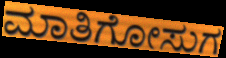
ಮಾತಿಗೋಸುಗ